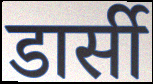
डार्सी